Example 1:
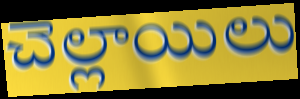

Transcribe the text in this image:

చెల్లాయిలు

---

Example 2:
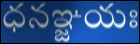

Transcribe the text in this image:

ధనఞ్జయః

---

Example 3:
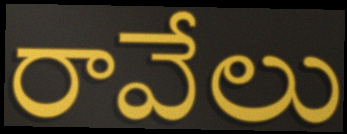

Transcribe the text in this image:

రావేలు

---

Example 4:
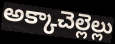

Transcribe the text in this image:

అక్కాచెల్లెల్లు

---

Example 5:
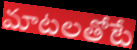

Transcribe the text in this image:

మాటలతోటే